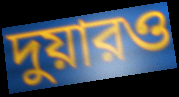
দুয়ারও